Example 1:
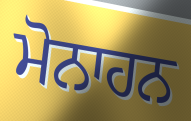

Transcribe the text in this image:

ਮੋਨਾਹਨ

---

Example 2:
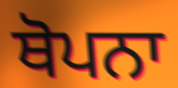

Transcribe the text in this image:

ਥੋਪਨਾ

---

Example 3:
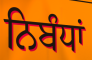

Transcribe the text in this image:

ਨਿਬੰਧਾਂ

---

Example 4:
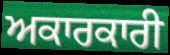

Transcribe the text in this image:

ਅਕਾਰਕਾਰੀ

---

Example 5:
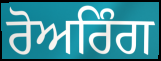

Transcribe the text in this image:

ਰੋਅਰਿੰਗ